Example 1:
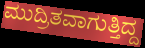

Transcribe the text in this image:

ಮುದ್ರಿತವಾಗುತ್ತಿದ್ದ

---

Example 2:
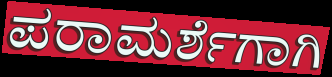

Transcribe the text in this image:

ಪರಾಮರ್ಶೆಗಾಗಿ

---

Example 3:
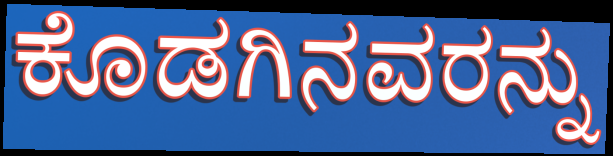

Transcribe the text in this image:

ಕೊಡಗಿನವರನ್ನು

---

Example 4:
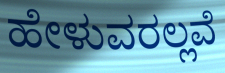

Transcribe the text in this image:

ಹೇಳುವರಲ್ಲವೆ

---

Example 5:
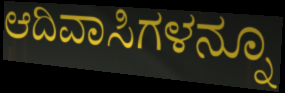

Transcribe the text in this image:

ಆದಿವಾಸಿಗಳನ್ನೂ